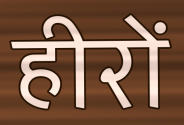
हीरों